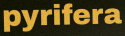
pyrifera